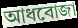
আধবোজা